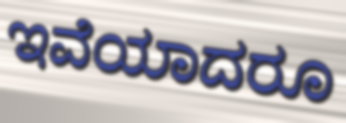
ಇವೆಯಾದರೂ